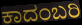
ಕಾದಂಬರಿ